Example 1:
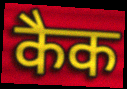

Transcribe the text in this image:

कैक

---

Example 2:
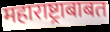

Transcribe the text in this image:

महाराष्ट्राबाबत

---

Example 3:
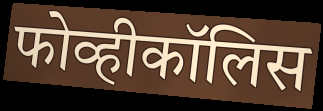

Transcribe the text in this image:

फोव्हीकॉलिस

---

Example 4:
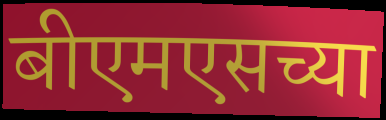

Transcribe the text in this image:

बीएमएसच्या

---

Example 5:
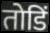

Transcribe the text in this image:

तोडिं